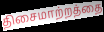
திசைமாற்றத்தை